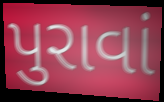
પુરાવાં